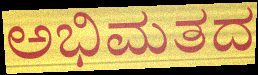
ಅಭಿಮತದ